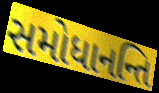
સમોધાનન્તિ